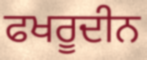
ਫਖਰੂਦੀਨ